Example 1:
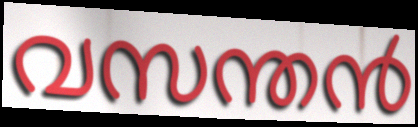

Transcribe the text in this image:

വസന്തൻ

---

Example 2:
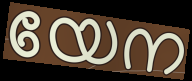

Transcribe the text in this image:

യേന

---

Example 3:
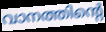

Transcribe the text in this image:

വാനത്തിന്റെ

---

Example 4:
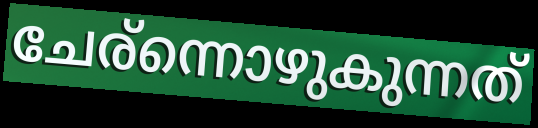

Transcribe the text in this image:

ചേര്ന്നൊഴുകുന്നത്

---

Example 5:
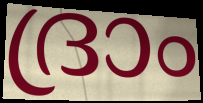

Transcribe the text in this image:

ദ്രാം